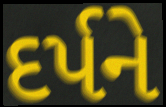
દર્પને